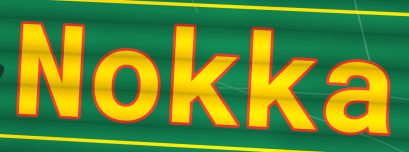
Nokka